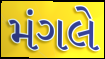
મંગલે